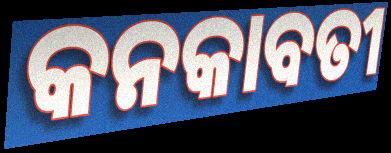
କନକାବତୀ